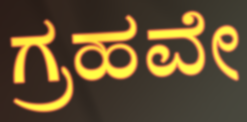
ಗ್ರಹವೇ